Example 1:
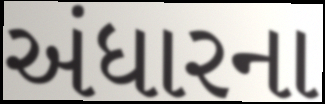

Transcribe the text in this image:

અંધારના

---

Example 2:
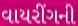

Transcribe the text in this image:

વાયરીંગની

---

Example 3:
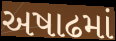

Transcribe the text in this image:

અષાઢમાં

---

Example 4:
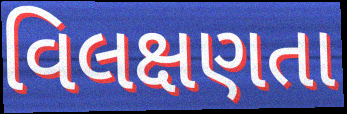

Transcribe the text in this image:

વિલક્ષણતા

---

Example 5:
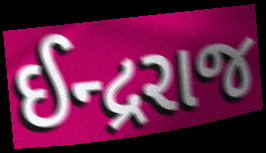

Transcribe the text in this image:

ઈન્દ્રરાજ